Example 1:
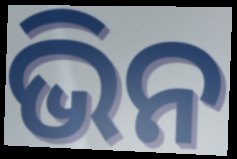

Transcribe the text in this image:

ଭିନ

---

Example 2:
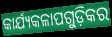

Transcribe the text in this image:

କାର୍ଯ୍ୟକଳାପଗୁଡ଼ିକର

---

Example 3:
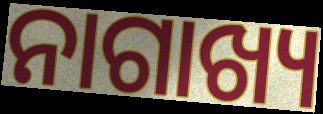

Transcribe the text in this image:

ନାଗାଖ୍ୟ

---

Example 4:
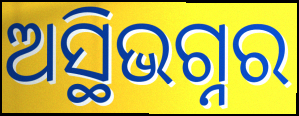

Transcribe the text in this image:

ଅସ୍ଥିଭଗ୍ନର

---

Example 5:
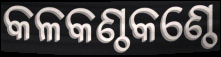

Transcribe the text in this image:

କଳକଣ୍ଠକଣ୍ଠେ